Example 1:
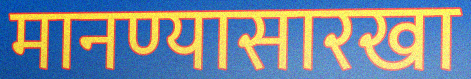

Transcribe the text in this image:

मानण्यासारखा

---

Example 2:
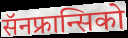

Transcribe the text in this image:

सॅनफ्रान्सिको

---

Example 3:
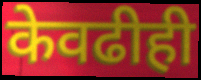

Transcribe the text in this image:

केवढीही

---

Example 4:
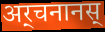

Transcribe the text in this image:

अर्चनानस्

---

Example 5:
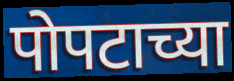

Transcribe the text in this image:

पोपटाच्या